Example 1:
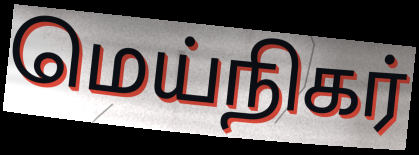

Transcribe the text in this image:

மெய்நிகர்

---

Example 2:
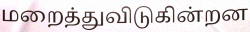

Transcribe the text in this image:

மறைத்துவிடுகின்றன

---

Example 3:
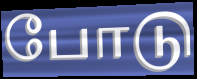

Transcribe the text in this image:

போடு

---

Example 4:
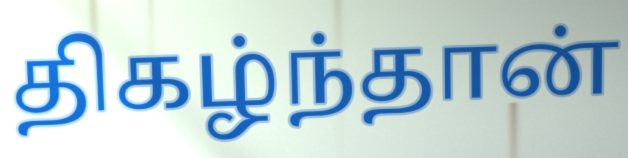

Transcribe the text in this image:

திகழ்ந்தான்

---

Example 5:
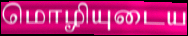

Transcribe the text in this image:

மொழியுடைய